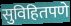
सुविहितपणे